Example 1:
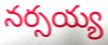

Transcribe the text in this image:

నర్సయ్య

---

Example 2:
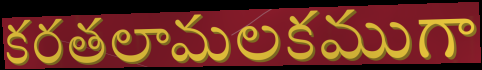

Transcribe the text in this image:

కరతలామలకముగా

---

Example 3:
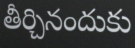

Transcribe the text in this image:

తీర్చినందుకు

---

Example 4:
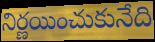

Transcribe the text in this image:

నిర్ణయించుకునేది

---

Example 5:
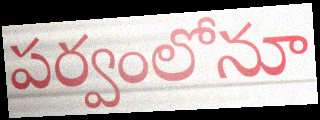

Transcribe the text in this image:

పర్వంలోనూ